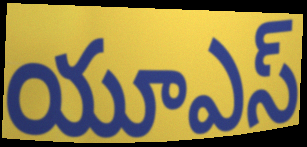
యూఎస్